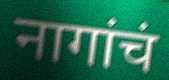
नागांचं